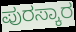
ಪುರಸ್ಕಾರ